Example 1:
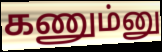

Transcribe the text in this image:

கணும்னு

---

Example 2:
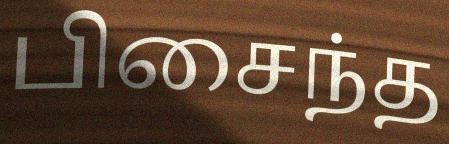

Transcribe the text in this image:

பிசைந்த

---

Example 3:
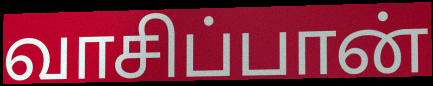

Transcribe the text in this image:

வாசிப்பான்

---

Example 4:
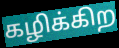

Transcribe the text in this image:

கழிக்கிற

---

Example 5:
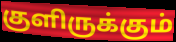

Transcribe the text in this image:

குளிருக்கும்